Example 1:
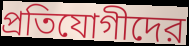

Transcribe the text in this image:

প্রতিযোগীদের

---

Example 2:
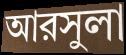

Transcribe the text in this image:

আরসুলা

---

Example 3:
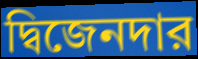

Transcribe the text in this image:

দ্বিজেনদার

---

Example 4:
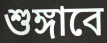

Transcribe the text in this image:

শুঙ্গাবে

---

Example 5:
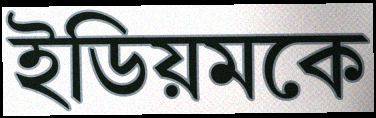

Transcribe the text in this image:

ইডিয়মকে